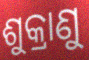
ଶୁକ୍ରାଣୁ